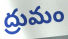
ద్రుమం